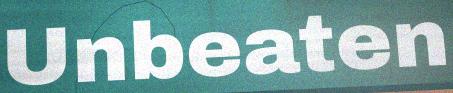
Unbeaten